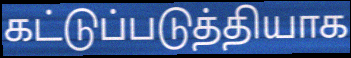
கட்டுப்படுத்தியாக